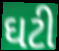
ઘટી